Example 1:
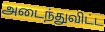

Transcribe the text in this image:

அடைந்துவிட்ட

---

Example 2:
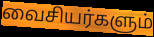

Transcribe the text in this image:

வைசியர்களும்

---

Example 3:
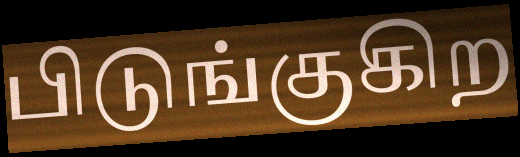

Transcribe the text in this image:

பிடுங்குகிற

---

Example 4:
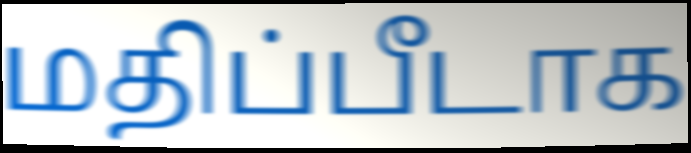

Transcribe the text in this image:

மதிப்பீடாக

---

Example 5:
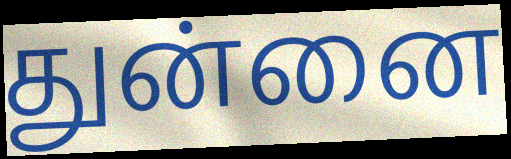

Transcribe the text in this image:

துன்னை